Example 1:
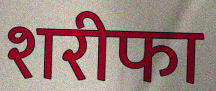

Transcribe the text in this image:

शरीफा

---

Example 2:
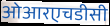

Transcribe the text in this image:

ओआरएचडीसी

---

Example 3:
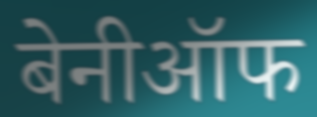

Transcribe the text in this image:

बेनीऑफ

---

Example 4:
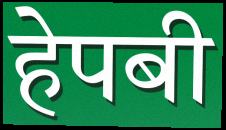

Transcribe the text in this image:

हेपबी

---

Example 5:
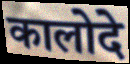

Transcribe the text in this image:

कालोदे